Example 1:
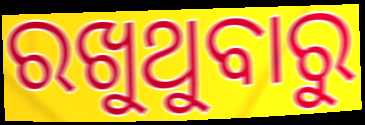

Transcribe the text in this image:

ରଖୁଥୁବାରୁ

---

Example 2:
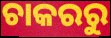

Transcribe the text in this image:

ଚାକରରୁ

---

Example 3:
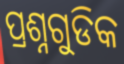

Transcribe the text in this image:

ପ୍ରଶ୍ନଗୁଡିକ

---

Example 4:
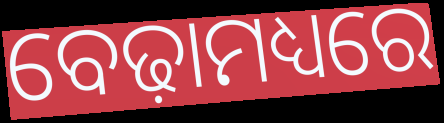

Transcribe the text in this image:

ବେଢ଼ାମଧ୍ୟରେ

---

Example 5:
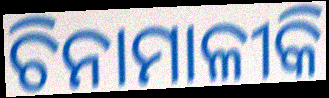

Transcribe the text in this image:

ଚିନାମାଳୀକି